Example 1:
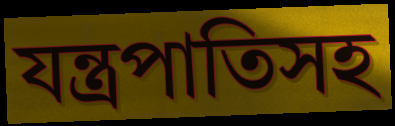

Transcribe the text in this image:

যন্ত্রপাতিসহ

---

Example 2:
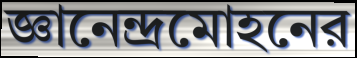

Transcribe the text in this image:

জ্ঞানেন্দ্রমোহনের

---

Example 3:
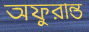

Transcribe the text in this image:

অফুরান্ত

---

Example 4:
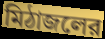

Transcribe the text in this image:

মিঠাজলের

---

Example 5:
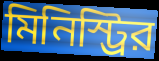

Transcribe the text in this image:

মিনিস্ট্রির